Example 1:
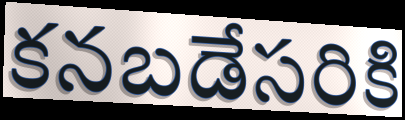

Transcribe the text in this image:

కనబడేసరికి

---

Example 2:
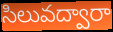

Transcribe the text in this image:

సిలువద్వారా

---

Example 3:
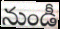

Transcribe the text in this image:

నుండీ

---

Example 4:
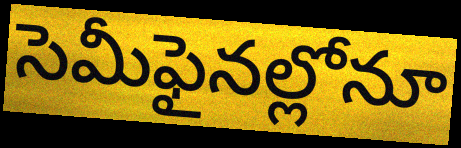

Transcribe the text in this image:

సెమీఫైనల్లోనూ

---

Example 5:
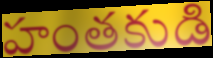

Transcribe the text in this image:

హంతకుడి